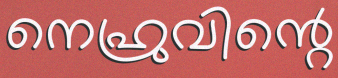
നെഹ്രുവിന്റെ